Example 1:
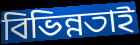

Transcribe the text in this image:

বিভিন্নতাই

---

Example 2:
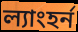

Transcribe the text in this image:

ল্যাংহর্ন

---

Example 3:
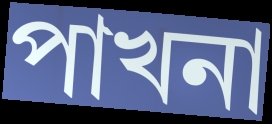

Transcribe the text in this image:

পাখনা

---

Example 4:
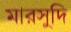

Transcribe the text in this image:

মারসুদি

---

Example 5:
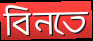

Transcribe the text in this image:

বিনতে